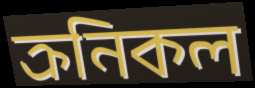
ক্রনিকল